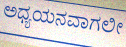
ಅಧ್ಯಯನವಾಗಲೀ